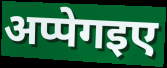
अप्पेगइए